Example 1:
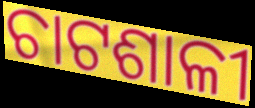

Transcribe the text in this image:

ଚାଟଶାଳୀ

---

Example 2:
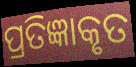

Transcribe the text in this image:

ପ୍ରତିଜ୍ଞାକୃତ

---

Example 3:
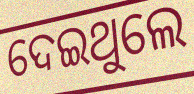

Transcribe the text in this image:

ଦେଇଥୁଲେ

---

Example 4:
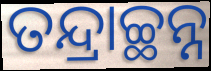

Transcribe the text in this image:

ତନ୍ଦ୍ରାଚ୍ଛନ୍ନ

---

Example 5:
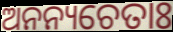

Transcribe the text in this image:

ଅନନ୍ୟଚେତାଃ